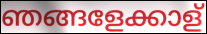
ഞങ്ങളേക്കാള്